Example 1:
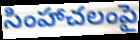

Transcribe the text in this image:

సింహాచలంపై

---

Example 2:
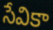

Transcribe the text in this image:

సేవికా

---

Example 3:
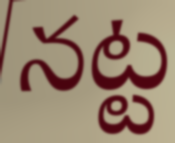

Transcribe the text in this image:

నట్ట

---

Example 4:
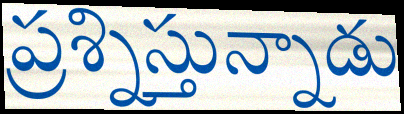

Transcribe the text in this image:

ప్రశ్నిస్తున్నాడు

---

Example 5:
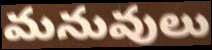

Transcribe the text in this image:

మనువులు